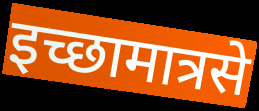
इच्छामात्रसे